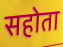
सहोता